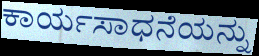
ಕಾರ್ಯಸಾಧನೆಯನ್ನು